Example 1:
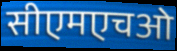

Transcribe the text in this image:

सीएमएचओ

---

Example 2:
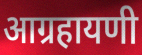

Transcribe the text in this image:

आग्रहायणी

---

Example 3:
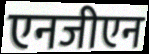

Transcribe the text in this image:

एनजीएन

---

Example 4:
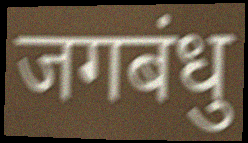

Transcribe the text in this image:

जगबंधु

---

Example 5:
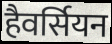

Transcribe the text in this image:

हैवर्सियन